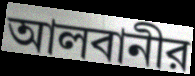
আলবানীর